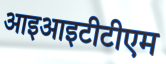
आइआइटीटीएम